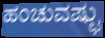
ಹಂಚುವಷ್ಟು